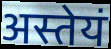
अस्तेयं